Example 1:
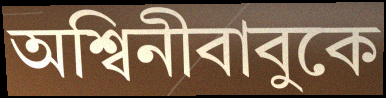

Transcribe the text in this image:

অশ্বিনীবাবুকে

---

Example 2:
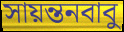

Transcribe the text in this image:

সায়ন্তনবাবু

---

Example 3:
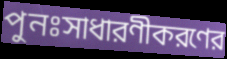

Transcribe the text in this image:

পুনঃসাধারণীকরণের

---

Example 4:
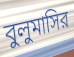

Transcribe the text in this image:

বুলুমাসির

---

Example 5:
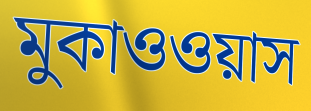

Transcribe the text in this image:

মুকাওওয়াস